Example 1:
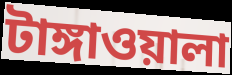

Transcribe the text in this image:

টাঙ্গাওয়ালা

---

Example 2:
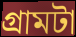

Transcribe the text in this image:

গ্রামটা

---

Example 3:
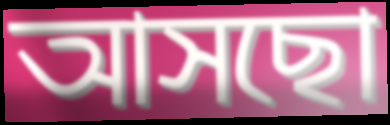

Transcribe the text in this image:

আসছো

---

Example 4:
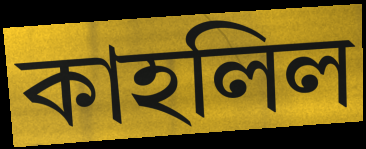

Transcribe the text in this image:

কাহলিল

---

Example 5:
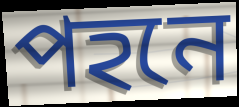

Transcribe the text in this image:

পহনে